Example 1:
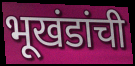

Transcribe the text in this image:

भूखंडांची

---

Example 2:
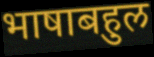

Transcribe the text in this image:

भाषाबहुल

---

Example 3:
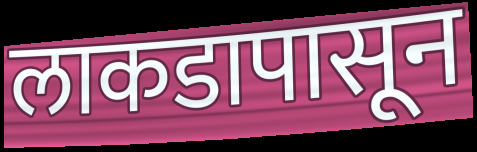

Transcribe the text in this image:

लाकडापासून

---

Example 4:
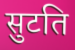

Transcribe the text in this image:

सुटति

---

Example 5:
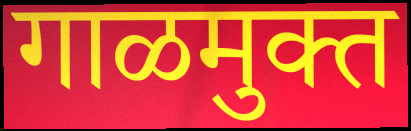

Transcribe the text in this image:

गाळमुक्त